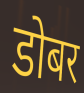
डोबर